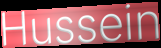
Hussein